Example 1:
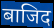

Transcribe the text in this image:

बाजिद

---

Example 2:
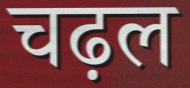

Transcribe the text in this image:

चढ़ल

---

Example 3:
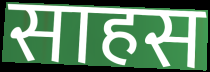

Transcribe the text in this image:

साहस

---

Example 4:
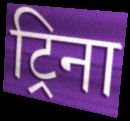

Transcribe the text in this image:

ट्रिना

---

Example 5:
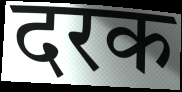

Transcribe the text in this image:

दरक